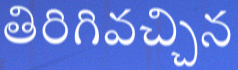
తిరిగివచ్చిన